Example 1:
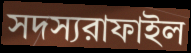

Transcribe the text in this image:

সদস্যরাফাইল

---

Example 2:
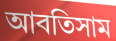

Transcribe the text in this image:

আবতিসাম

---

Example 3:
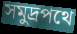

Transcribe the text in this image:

সমুদ্রপথে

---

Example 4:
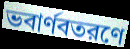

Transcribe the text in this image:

ভবার্ণবতরণে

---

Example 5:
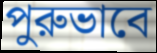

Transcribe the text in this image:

পুরুভাবে